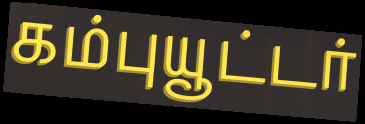
கம்புயூட்டர்